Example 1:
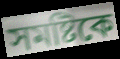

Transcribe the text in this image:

সমষ্টিকে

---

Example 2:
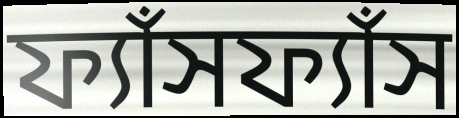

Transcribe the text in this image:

ফ্যাঁসফ্যাঁস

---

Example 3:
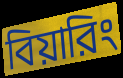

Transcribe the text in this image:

বিয়ারিং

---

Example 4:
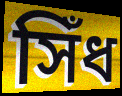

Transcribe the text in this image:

সিঁধ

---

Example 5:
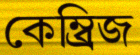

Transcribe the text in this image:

কেম্ব্রিজ